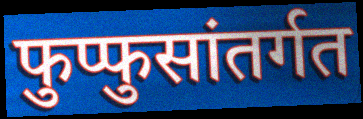
फुप्फुसांतर्गत